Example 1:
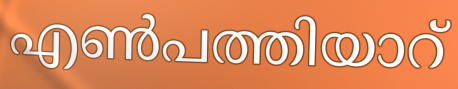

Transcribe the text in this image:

എൺപത്തിയാറ്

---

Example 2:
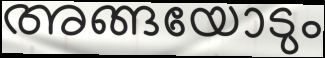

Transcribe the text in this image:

അങ്ങയോടും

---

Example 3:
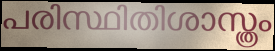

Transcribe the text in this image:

പരിസ്ഥിതിശാസ്ത്രം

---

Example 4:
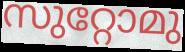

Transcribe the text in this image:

സുറ്റോമു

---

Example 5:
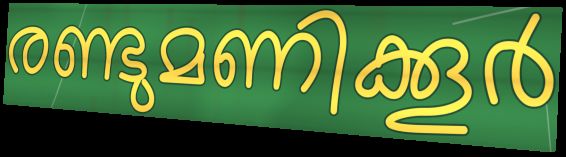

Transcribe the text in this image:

രണ്ടുമണിക്കൂർ